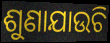
ଶୁଣାଯାଉଚି